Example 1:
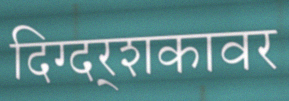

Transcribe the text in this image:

दिग्दर्शकावर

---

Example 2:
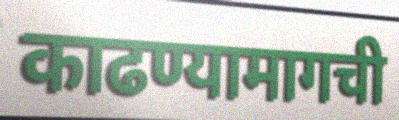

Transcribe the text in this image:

काढण्यामागची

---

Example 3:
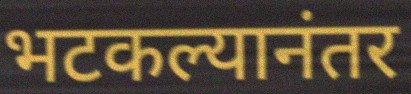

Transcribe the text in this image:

भटकल्यानंतर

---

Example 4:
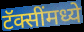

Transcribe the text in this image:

टॅक्सींमध्ये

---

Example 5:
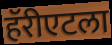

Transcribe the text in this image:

हॅरीएटला